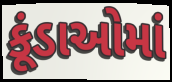
કૂંડાઓમાં